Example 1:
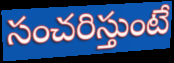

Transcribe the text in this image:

సంచరిస్తుంటే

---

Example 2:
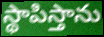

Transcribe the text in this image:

స్థాపిస్తాను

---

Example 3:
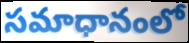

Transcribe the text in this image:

సమాధానంలో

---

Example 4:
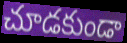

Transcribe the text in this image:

చూడకుండా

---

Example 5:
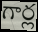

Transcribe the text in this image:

గార్ల